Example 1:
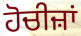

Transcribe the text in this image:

ਹੋਚੀਜ਼ਾਂ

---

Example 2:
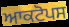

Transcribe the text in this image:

ਆਕਟੋਪਸ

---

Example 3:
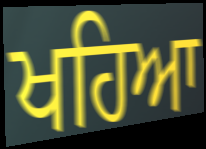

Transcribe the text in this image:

ਖਹਿਆ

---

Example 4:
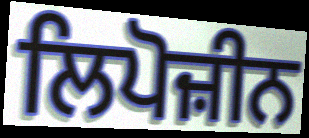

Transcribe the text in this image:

ਲਿਪੋਜ਼ੀਨ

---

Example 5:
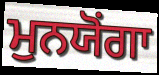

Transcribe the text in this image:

ਮੁਨਯੋਂਗਾ